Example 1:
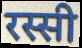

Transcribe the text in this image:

रस्सी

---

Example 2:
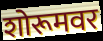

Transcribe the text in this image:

शोरूमवर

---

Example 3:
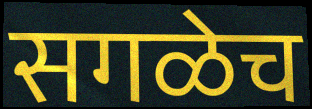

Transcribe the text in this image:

सगळेच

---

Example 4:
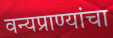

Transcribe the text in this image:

वन्यप्राण्यांचा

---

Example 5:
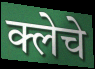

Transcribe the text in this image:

क्लेचे